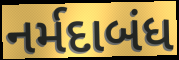
નર્મદાબંધ